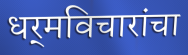
धर्मविचारांचा